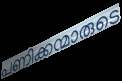
പണിക്കന്മാരുടെ